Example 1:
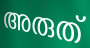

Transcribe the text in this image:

അരുത്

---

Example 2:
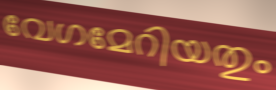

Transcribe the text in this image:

വേഗമേറിയതും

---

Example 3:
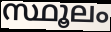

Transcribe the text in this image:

സ്ഥൂലം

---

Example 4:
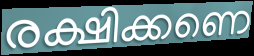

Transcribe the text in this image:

രക്ഷിക്കണെ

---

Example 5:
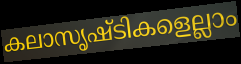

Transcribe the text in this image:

കലാസൃഷ്ടികളെല്ലാം